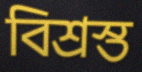
বিশ্রস্ত